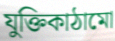
যুক্তিকাঠামো